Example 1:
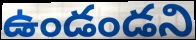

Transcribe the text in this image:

ఉండండని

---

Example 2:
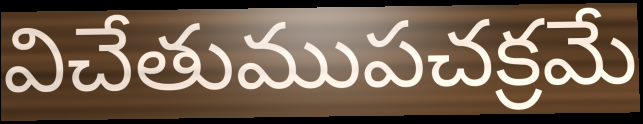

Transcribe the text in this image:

విచేతుముపచక్రమే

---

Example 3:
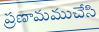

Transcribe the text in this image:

ప్రణామముచేసి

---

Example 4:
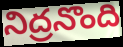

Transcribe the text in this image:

నిద్రనొంది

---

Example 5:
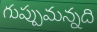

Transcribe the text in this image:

గుప్పుమన్నది